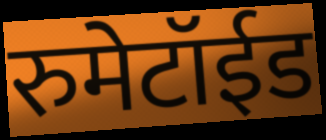
रुमेटॉईड